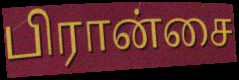
பிரான்சை